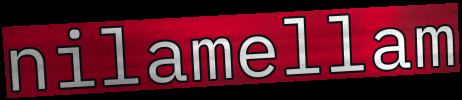
nilamellam